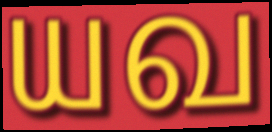
யவ